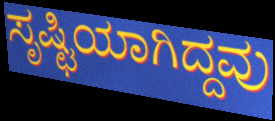
ಸೃಷ್ಟಿಯಾಗಿದ್ದವು